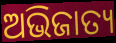
ଅଭିଜାତ୍ୟ